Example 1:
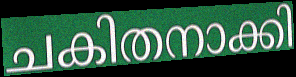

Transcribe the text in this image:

ചകിതനാക്കി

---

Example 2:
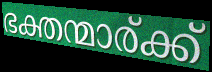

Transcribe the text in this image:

ഭക്തന്മാര്ക്ക്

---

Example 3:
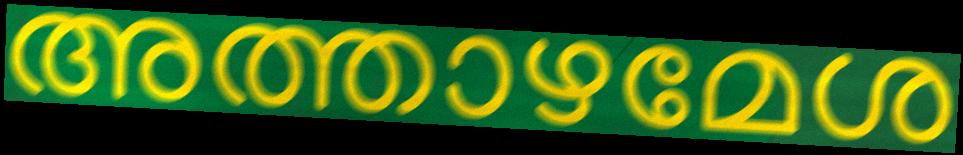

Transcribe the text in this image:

അത്താഴമേശ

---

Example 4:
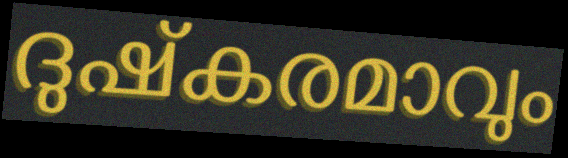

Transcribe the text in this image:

ദുഷ്‌കരമാവും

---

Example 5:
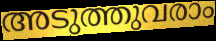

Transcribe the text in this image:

അടുത്തുവരാം